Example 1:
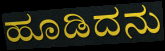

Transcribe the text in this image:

ಹೂಡಿದನು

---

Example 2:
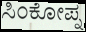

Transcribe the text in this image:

ಸಿಂಕೋಪ್ನ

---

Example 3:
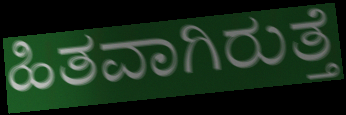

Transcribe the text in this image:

ಹಿತವಾಗಿರುತ್ತೆ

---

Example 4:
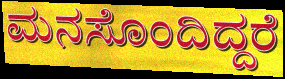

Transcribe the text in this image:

ಮನಸೊಂದಿದ್ದರೆ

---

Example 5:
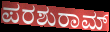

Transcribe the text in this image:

ಪರಶುರಾಮ್